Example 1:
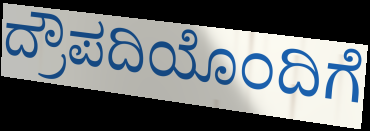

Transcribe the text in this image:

ದ್ರೌಪದಿಯೊಂದಿಗೆ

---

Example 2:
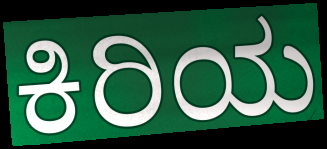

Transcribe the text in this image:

ಕಿರಿಯ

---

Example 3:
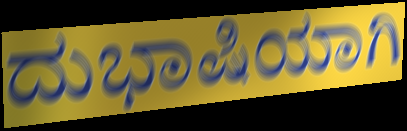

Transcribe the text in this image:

ದುಭಾಷಿಯಾಗಿ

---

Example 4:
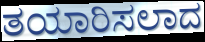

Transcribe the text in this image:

ತಯಾರಿಸಲಾದ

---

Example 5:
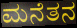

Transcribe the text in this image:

ಮನೆತನ